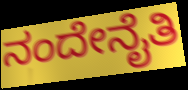
ನಂದೇನೈತಿ